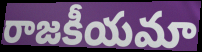
రాజకీయమా